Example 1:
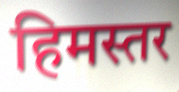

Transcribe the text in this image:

हिमस्तर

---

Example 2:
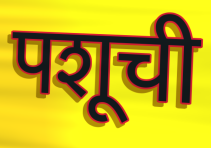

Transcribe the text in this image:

पशूची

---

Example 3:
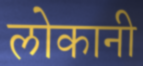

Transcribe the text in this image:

लोकानी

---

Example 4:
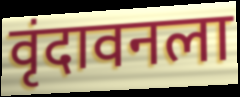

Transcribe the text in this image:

वृंदावनला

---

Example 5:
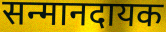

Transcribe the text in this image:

सन्मानदायक